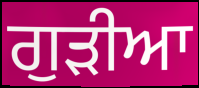
ਗੁੜੀਆ